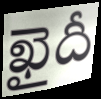
ఖైదీ